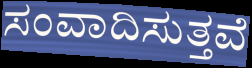
ಸಂವಾದಿಸುತ್ತವೆ